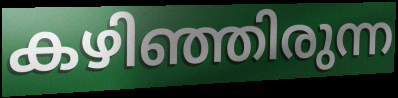
കഴിഞ്ഞിരുന്ന